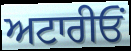
ਅਟਾਰੀਓਂ